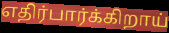
எதிர்பார்க்கிறாய்